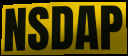
NSDAP